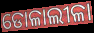
ଡୋଳାଲୀଳା